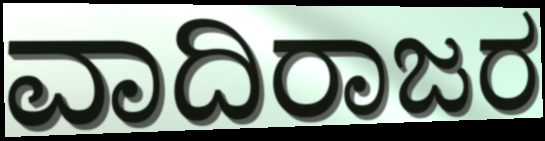
ವಾದಿರಾಜರ